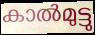
കാൽമുട്ടു